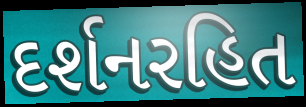
દર્શનરહિત